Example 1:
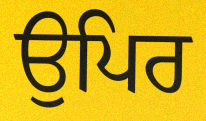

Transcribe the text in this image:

ਉਪਿਰ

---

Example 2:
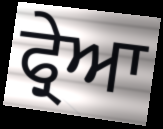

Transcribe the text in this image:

ਫ੍ਰੇਆ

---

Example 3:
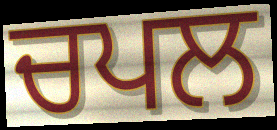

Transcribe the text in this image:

ਚਪਲ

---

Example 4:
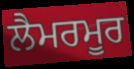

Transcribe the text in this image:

ਲੈਮਰਮੂਰ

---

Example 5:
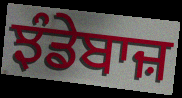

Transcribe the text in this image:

ਝੰਡੇਬਾਜ਼